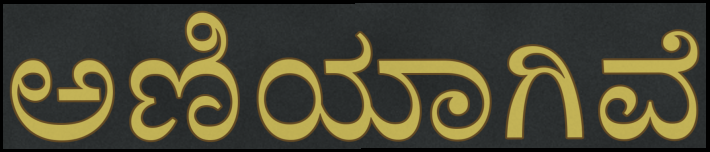
ಅಣಿಯಾಗಿವೆ